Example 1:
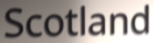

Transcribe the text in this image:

Scotland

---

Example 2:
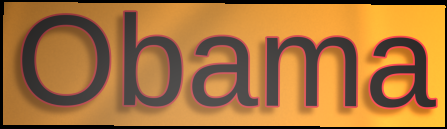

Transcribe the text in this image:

Obama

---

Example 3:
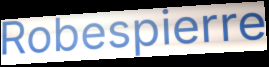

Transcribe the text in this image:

Robespierre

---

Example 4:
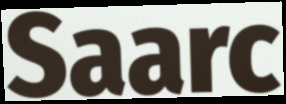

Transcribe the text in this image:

Saarc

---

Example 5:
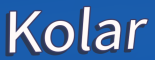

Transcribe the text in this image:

Kolar